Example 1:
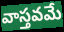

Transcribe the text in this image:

వాస్తవమే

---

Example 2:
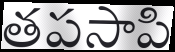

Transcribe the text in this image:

తపసాపి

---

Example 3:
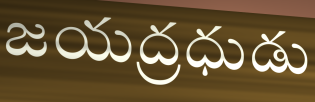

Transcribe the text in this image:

జయద్రధుడు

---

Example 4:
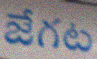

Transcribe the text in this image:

జేగట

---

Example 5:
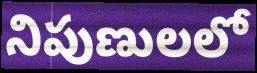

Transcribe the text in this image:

నిపుణులలో